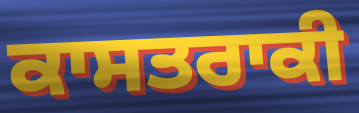
ਕਾਸਤਰਾਕੀ